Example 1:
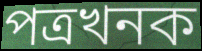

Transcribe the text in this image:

পত্ৰখনক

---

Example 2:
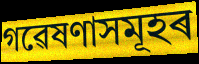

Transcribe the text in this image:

গৱেষণাসমূহৰ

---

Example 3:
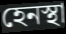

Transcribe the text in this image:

হেনস্থা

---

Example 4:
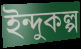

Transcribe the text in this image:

ইন্দুকল্প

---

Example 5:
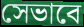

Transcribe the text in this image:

সেভাবে